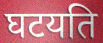
घटयति